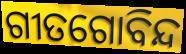
ଗୀତଗୋବିନ୍ଦ